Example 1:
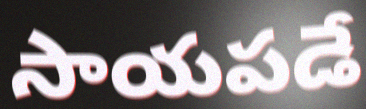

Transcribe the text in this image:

సాయపడే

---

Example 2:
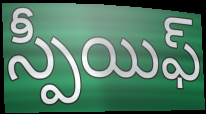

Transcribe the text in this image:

స్పీయిఫ్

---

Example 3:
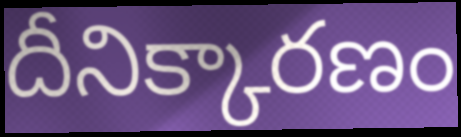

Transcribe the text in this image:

దీనిక్కారణం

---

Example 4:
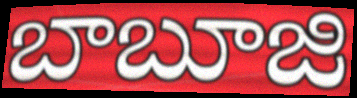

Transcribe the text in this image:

బాబూజి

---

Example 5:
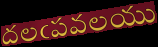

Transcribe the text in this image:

దలఁపవలయు